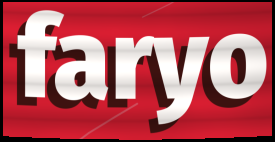
faryo